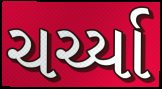
ચર્ચ્યા